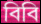
বিবি